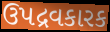
ઉપદ્રવકારક